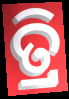
ତ୍ରି